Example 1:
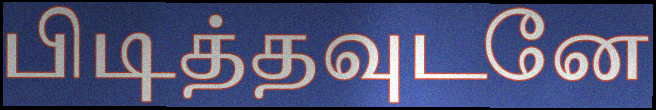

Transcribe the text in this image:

பிடித்தவுடனே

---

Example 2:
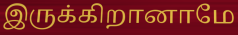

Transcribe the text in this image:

இருக்கிறானாமே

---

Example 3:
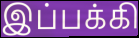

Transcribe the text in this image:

இப்பக்கி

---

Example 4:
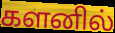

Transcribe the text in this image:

களனில்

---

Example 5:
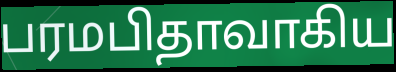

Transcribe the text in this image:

பரமபிதாவாகிய